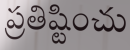
ప్రతిష్టించు